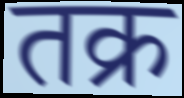
तक्र